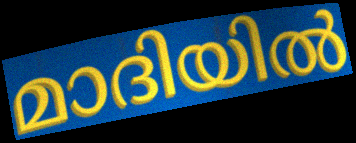
മാദിയിൽ